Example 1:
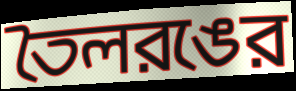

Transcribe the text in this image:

তৈলরঙের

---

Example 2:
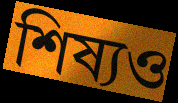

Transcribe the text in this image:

শিষ্যও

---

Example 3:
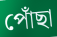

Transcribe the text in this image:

পোঁছা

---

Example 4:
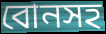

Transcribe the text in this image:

বোনসহ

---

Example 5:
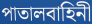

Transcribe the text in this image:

পাতালবাহিনী